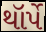
થૉર્પે